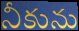
నీకును